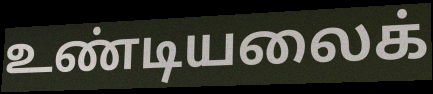
உண்டியலைக்